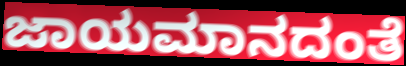
ಜಾಯಮಾನದಂತೆ